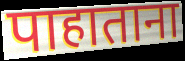
पाहाताना